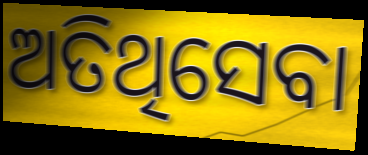
ଅତିଥିସେବା